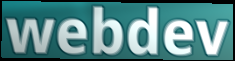
webdev